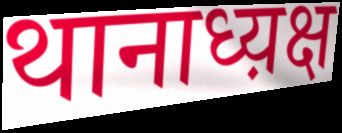
थानाध्य़क्ष